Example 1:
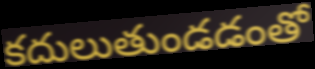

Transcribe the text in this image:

కదులుతుండడంతో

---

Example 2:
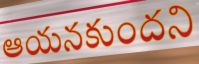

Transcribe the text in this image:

ఆయనకుందని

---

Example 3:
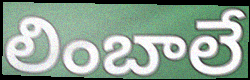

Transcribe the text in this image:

లింబాలే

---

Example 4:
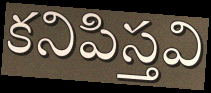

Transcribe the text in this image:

కనిపిస్తవి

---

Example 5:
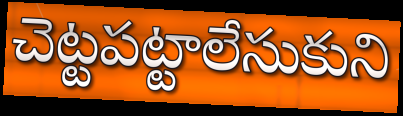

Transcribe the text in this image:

చెట్టపట్టాలేసుకుని